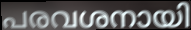
പരവശനായി